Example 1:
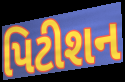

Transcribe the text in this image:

પિટીશન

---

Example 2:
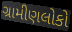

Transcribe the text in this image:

ગ્રામીણલોકો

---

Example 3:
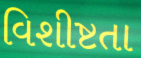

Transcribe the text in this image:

વિશીષ્ટતા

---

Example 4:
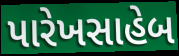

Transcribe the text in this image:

પારેખસાહેબ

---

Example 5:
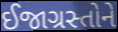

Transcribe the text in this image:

ઈજાગ્રસ્તોને